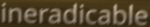
ineradicable